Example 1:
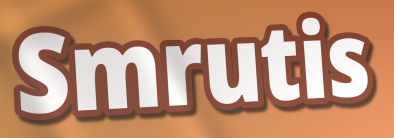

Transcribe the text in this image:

Smrutis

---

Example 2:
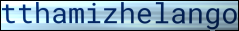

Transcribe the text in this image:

tthamizhelango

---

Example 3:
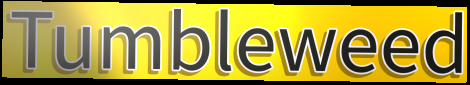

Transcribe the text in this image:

Tumbleweed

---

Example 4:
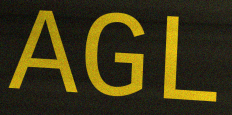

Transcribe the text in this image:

AGL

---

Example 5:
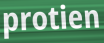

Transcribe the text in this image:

protien